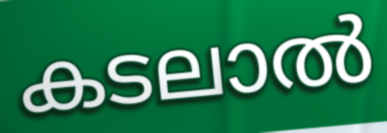
കടലാൽ